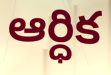
ఆర్ధిక